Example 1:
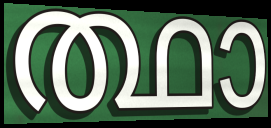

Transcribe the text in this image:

ത്ഥാ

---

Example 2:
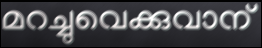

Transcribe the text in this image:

മറച്ചുവെക്കുവാന്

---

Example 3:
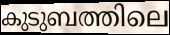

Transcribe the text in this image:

കുടുബത്തിലെ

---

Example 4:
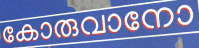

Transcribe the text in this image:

കോരുവാനോ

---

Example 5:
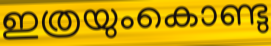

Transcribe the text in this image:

ഇത്രയുംകൊണ്ടു